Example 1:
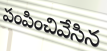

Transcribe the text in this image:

పంపించివేసిన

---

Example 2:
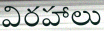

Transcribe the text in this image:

విరహాలు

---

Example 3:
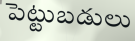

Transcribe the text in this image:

పెట్టుబడులు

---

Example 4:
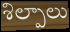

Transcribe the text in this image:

శిల్పాలు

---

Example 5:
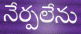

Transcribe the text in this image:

నేర్పలేను